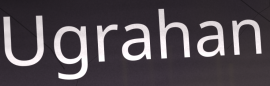
Ugrahan